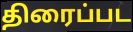
திரைப்பட